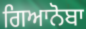
ਗਿਆਨੋਬਾ